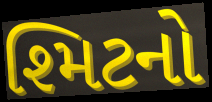
શ્મિટનો